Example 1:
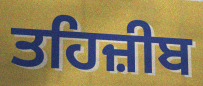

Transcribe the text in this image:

ਤਹਿਜ਼ੀਬ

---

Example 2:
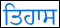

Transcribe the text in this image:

ਤਿਹਾਸ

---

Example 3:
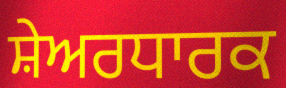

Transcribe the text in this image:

ਸ਼ੇਅਰਧਾਰਕ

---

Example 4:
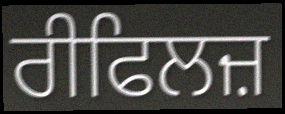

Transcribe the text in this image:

ਰੀਫਿਲਜ਼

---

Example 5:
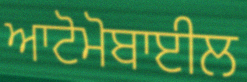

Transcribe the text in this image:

ਆਟੋਮੋਬਾਈਲ